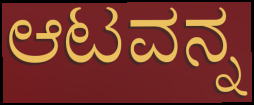
ಆಟವನ್ನ